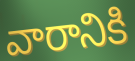
వారానికి